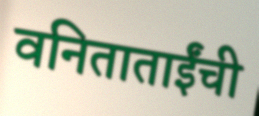
वनिताताईंची